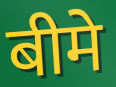
बीमे